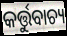
କର୍ତ୍ତୁବାଚ୍ୟ